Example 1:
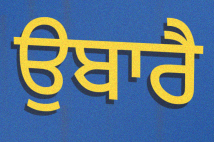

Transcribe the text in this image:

ਉਬਾਰੈ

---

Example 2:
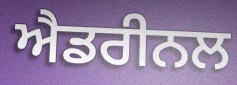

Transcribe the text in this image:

ਐਡਰੀਨਲ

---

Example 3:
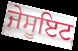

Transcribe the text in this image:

ਜੇਸੂਇਟ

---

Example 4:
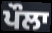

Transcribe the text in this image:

ਪੌਲਾ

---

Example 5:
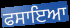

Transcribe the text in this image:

ਫਸਾਇਆ